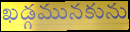
ఖడ్గమునకును